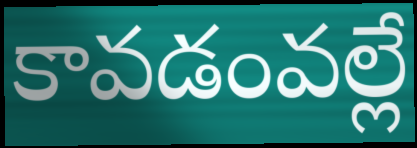
కావడంవల్లే